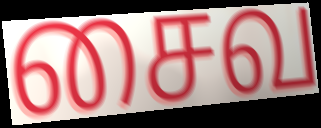
சைவ